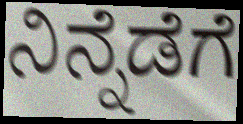
ನಿನ್ನೆಡೆಗೆ